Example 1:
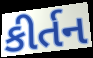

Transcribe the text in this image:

કીર્તન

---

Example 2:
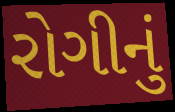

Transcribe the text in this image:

રોગીનું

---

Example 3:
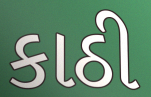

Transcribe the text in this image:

કાઠી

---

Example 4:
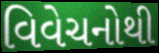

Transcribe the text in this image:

વિવેચનોથી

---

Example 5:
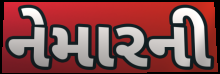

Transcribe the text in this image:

નેમારની